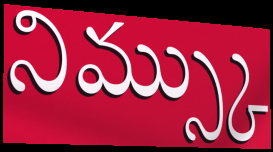
నిమ్స్కు